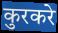
कुरकरे